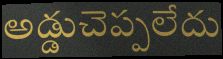
అడ్డుచెప్పలేదు